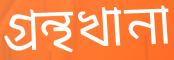
গ্রন্থখানা